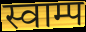
स्वाम्प